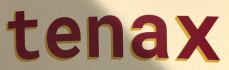
tenax